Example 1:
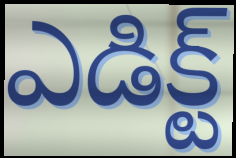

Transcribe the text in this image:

ఎడిక్ట్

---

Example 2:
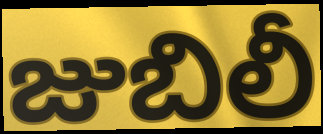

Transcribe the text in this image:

జుబిలీ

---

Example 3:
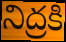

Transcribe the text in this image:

నిద్రకి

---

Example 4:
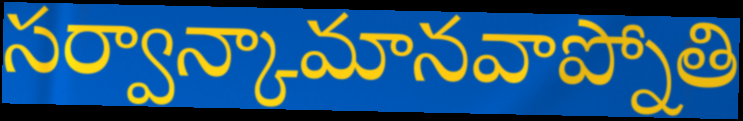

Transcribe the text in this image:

సర్వాన్కామానవాప్నోతి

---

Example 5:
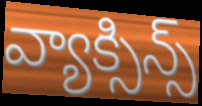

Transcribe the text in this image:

వ్యాక్సిన్స్